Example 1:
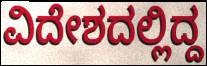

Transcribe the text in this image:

ವಿದೇಶದಲ್ಲಿದ್ದ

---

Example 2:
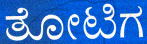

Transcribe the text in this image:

ತೋಟಿಗ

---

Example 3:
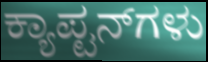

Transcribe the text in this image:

ಕ್ಯಾಪ್ಟನ್‌ಗಳು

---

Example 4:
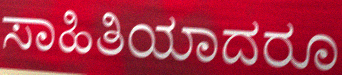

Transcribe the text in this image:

ಸಾಹಿತಿಯಾದರೂ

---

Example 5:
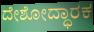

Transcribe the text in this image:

ದೇಶೋದ್ಧಾರಕ